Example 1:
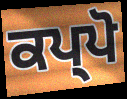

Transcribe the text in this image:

ਕਪ੍ਪੋ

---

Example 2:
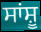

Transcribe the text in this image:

ਸਾਂਸ਼ੂ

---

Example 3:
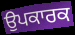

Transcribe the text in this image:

ਉਪਕਾਰਕ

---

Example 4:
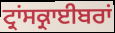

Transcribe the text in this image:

ਟ੍ਰਾਂਸਕ੍ਰਾਈਬਰਾਂ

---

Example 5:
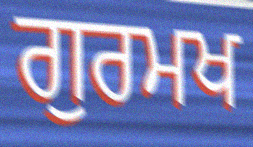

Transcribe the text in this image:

ਗੁਰਮਖ